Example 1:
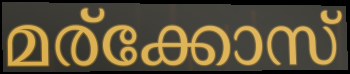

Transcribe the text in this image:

മര്ക്കോസ്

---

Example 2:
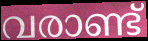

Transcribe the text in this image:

വരാണ്ട്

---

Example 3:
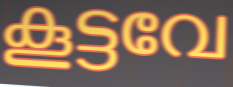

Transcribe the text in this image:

കൂട്ടവേ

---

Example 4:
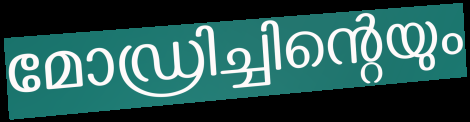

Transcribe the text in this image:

മോഡ്രിച്ചിന്റെയും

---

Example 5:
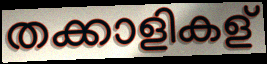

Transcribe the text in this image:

തക്കാളികള്